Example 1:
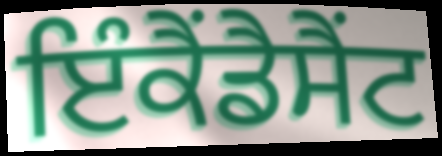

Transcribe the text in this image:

ਇੰਕੈਂਡੈਸੈਂਟ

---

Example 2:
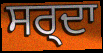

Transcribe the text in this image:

ਸਰ੍ਦਾ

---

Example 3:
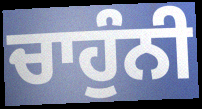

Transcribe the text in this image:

ਚਾਹੁੰਨੀ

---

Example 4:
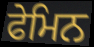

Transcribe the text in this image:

ਫੇਮਿਨ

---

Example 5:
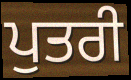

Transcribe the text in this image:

ਪੁਤਰੀ